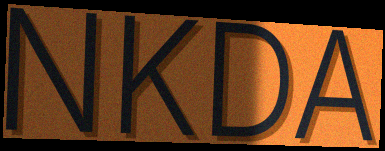
NKDA